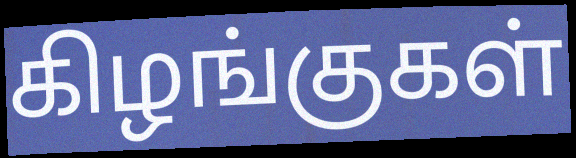
கிழங்குகள்